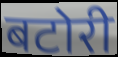
बटोरी